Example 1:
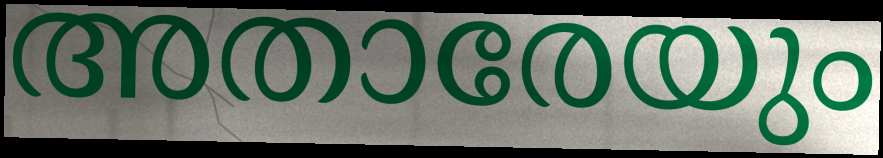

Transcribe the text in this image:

അതാരേയും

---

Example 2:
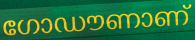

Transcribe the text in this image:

ഗോഡൗണാണ്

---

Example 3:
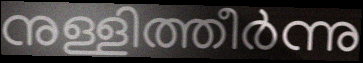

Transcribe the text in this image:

നുള്ളിത്തീർന്നു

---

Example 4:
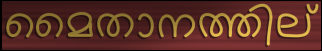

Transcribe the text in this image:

മൈതാനത്തില്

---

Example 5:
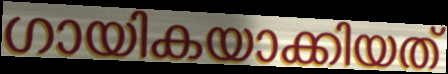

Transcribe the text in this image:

ഗായികയാക്കിയത്